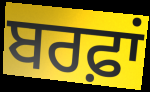
ਬਰਫ਼ਾਂ